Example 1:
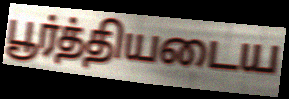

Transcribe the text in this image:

பூர்த்தியடைய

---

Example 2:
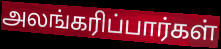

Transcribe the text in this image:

அலங்கரிப்பார்கள்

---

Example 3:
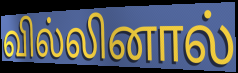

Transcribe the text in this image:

வில்லினால்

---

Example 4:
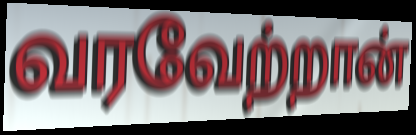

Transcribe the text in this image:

வரவேற்றான்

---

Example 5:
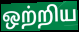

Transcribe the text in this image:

ஒற்றிய